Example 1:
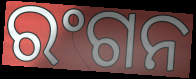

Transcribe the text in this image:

ରଂଗନ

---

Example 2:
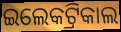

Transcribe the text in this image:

ଇଲେକଟ୍ରିକାଲ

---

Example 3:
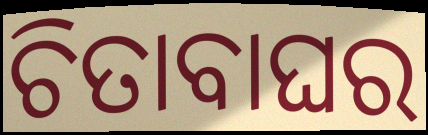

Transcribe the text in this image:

ଚିତାବାଘର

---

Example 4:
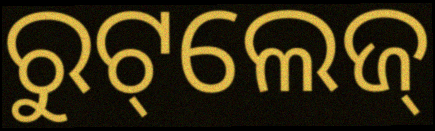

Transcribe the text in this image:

ରୁଟ୍‌ଲେଜ୍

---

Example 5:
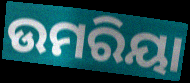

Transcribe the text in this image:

ଉମରିୟା